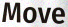
Move